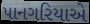
પાનગરિયાએ